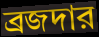
ব্রজদার